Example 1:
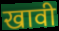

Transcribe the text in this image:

खावी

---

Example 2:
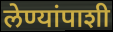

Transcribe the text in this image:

लेण्यांपाशी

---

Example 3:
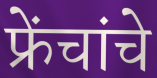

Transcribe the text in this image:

फ्रेंचांचे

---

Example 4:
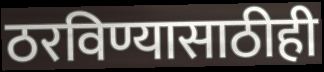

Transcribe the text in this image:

ठरविण्यासाठीही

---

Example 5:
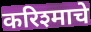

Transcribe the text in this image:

करिश्माचे